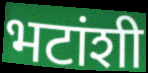
भटांशी